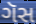
ગૅસ